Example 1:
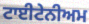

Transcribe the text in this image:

ਟਾਈਟੇਨੀਅਮ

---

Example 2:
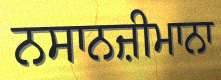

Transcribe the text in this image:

ਨਸਾਨਜ਼ੀਮਾਨਾ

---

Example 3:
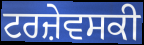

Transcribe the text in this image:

ਟਰਜ਼ੇਵਸਕੀ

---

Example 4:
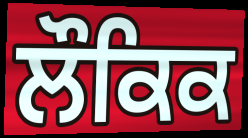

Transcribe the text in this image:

ਲੌਕਿਕ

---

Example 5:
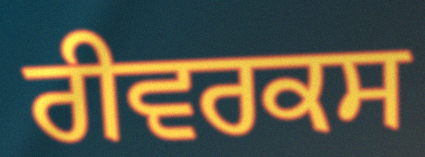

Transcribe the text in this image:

ਰੀਵਰਕਸ